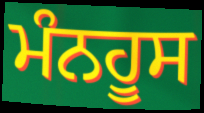
ਮੰਨਹੂਸ